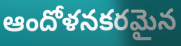
ఆందోళనకరమైన